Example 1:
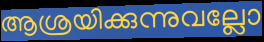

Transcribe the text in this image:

ആശ്രയിക്കുന്നുവല്ലോ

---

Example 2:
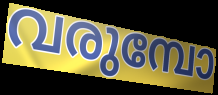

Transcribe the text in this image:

വരുമ്പോ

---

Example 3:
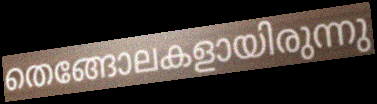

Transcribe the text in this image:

തെങ്ങോലകളായിരുന്നു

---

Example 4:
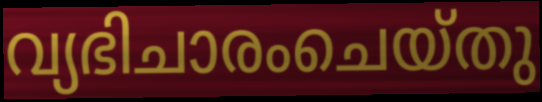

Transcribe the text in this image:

വ്യഭിചാരംചെയ്തു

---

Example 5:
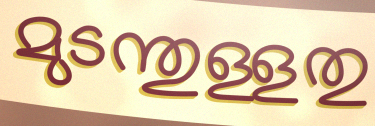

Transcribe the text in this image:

മുടന്തുള്ളതു